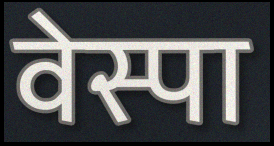
वेस्पा